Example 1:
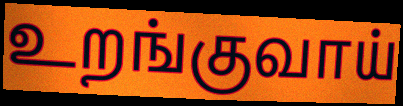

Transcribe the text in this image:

உறங்குவாய்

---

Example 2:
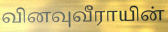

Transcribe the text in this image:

வினவுவீராயின்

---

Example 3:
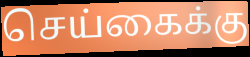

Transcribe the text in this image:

செய்கைக்கு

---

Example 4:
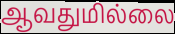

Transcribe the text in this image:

ஆவதுமில்லை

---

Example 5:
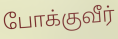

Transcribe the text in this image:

போக்குவீர்